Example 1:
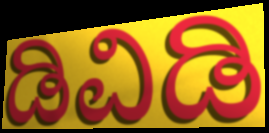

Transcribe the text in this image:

ಡಿವಿಡಿ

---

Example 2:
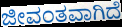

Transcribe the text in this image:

ಜೀವಂತವಾಗಿದೆ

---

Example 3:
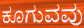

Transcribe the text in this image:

ಕೂಗುವವು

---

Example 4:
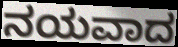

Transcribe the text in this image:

ನಯವಾದ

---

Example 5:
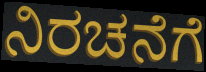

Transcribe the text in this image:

ನಿರಚನೆಗೆ